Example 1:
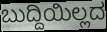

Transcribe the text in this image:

ಬುದ್ದಿಯಿಲ್ಲದ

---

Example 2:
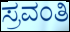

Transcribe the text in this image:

ಸ್ರವಂತಿ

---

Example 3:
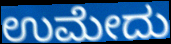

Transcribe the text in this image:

ಉಮೇದು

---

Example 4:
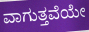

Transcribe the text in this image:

ವಾಗುತ್ತವೆಯೇ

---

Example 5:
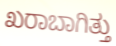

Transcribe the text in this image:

ಖರಾಬಾಗಿತ್ತು